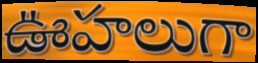
ఊహలుగా